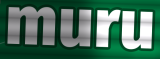
muru